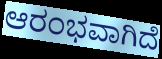
ಆರಂಭವಾಗಿದೆ